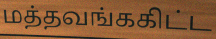
மத்தவங்ககிட்ட